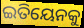
ଇତିୟେନକୁ